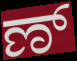
ಣ್